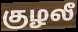
குழலீ